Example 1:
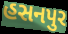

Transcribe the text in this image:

હસનપુર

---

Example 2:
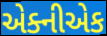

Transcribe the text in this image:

એક્નીએક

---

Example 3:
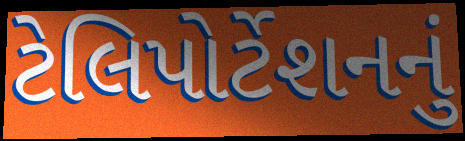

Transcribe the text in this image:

ટેલિપોર્ટેશનનું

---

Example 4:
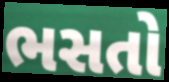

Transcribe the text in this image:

ભસતો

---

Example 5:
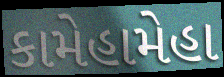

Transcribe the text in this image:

કામેહામેહા